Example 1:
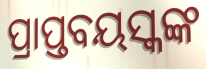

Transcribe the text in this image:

ପ୍ରାପ୍ତବୟସ୍କଙ୍କ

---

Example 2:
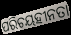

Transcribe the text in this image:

ପରିଚୟହୀନତା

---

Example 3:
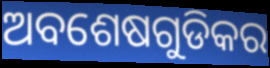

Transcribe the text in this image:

ଅବଶେଷଗୁଡିକର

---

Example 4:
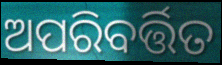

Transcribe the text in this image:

ଅପରିବର୍ତ୍ତିତ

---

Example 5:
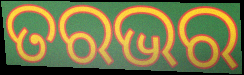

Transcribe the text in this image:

ତରଭର